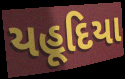
યહૂદિયા